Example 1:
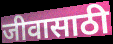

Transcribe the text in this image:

जीवासाठी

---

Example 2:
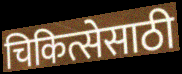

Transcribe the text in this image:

चिकित्सेसाठी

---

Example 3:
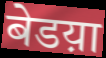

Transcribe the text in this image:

बेडय़ा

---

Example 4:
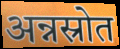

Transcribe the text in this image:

अन्नस्रोत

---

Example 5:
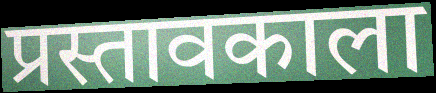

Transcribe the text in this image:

प्रस्तावकाला